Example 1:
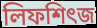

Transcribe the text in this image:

লিফশিৎজ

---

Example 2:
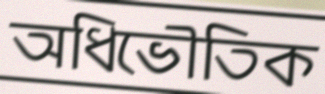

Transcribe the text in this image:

অধিভৌতিক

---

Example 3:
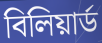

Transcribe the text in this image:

বিলিয়ার্ড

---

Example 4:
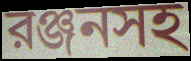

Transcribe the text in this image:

রঞ্জনসহ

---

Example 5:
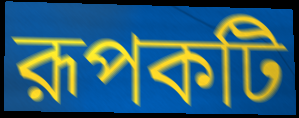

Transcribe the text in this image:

রূপকটি